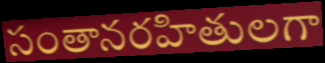
సంతానరహితులగా